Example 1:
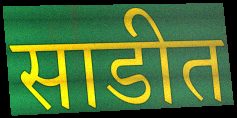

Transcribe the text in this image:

साडीत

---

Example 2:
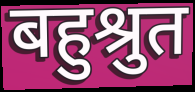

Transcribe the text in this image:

बहुश्रुत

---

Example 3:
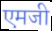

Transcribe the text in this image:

एमजी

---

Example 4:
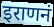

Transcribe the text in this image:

इराणनं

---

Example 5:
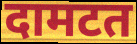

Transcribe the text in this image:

दामटत